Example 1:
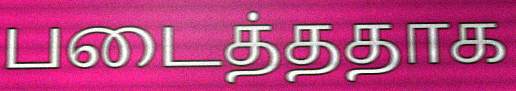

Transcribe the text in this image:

படைத்ததாக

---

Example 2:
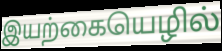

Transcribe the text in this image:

இயற்கையெழில்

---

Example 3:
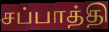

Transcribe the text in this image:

சப்பாத்தி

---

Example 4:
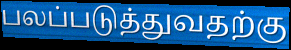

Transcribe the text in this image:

பலப்படுத்துவதற்கு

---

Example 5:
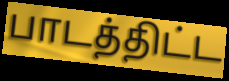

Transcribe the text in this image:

பாடத்திட்ட